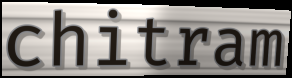
chitram